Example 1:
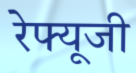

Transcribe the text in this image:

रेफ्यूजी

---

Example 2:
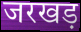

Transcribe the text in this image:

जरखड़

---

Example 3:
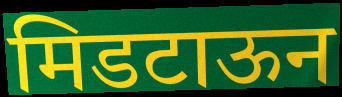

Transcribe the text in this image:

मिडटाऊन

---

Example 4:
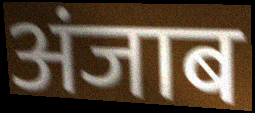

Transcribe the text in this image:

अंजाब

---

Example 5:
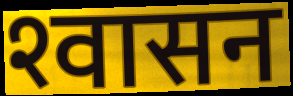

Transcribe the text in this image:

श्वासन